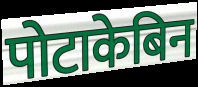
पोटाकेबिन